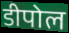
डीपोल